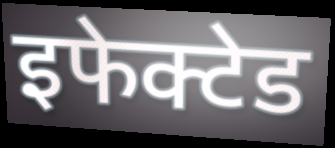
इफेक्टेड